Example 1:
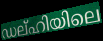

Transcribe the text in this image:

ഡല്ഹിയിലെ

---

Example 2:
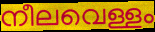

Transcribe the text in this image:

നീലവെള്ളം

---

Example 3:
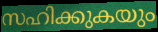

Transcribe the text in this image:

സഹിക്കുകയും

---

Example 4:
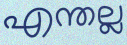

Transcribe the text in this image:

എന്തല്ല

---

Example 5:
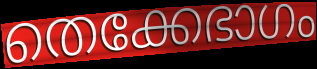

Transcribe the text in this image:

തെക്കേഭാഗം